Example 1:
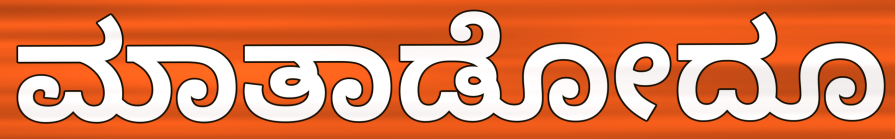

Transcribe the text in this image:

ಮಾತಾಡೋದೂ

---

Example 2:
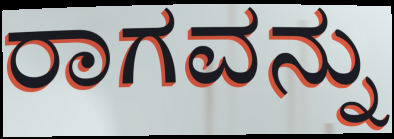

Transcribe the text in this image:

ರಾಗವನ್ನು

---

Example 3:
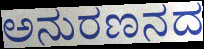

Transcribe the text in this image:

ಅನುರಣನದ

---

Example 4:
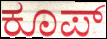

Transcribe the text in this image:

ಕೂಪ್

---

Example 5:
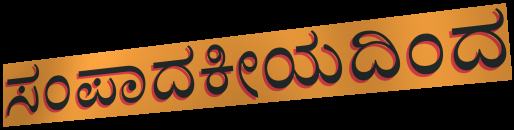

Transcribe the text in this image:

ಸಂಪಾದಕೀಯದಿಂದ